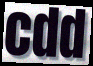
cdd